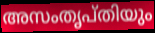
അസംതൃപ്തിയും